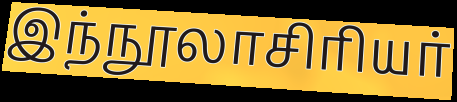
இந்நூலாசிரியர்